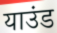
याउंड